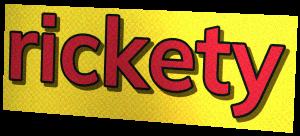
rickety